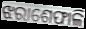
ଝରାଶେଫାଳି